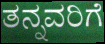
ತನ್ನವರಿಗೆ